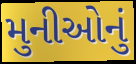
મુનીઓનું